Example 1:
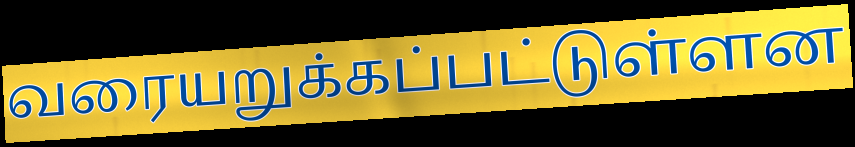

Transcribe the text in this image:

வரையறுக்கப்பட்டுள்ளன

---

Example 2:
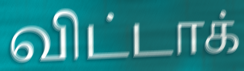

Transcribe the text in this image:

விட்டாக்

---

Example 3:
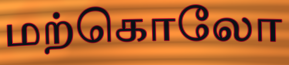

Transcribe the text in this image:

மற்கொலோ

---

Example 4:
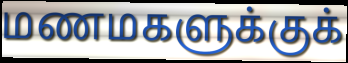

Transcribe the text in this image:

மணமகளுக்குக்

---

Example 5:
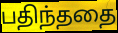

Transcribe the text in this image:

பதிந்ததை